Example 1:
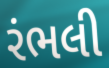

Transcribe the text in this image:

રંભલી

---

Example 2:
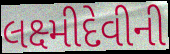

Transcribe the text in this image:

લક્ષ્મીદેવીની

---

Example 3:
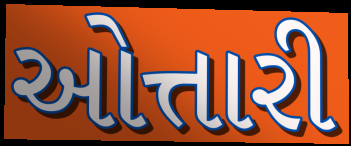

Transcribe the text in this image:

ઓત્તારી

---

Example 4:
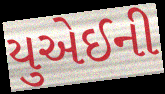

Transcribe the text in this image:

યુએઈની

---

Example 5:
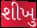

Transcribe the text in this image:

શીખુ